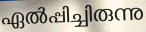
ഏൽപ്പിച്ചിരുന്നു